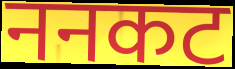
ननकट